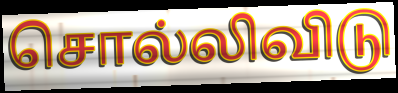
சொல்லிவிடு